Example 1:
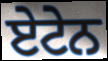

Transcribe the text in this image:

ਏਟੇਨ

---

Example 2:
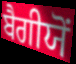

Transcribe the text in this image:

ਬੈਗੀਯੋਂ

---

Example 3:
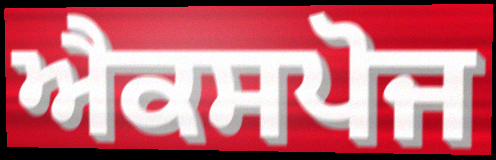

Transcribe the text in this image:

ਐਕਸਪੋਜ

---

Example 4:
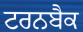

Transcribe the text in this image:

ਟਰਨਬੈਕ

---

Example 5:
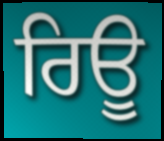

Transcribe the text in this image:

ਰਿਊ